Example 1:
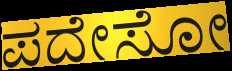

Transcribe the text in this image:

ಪದೇಸೋ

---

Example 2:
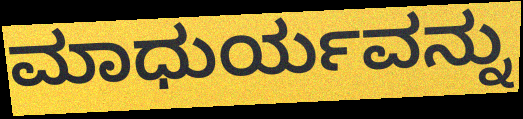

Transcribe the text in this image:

ಮಾಧುರ್ಯವನ್ನು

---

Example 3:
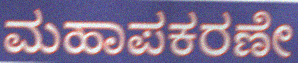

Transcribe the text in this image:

ಮಹಾಪಕರಣೇ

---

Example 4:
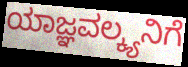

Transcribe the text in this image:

ಯಾಜ್ಞವಲ್ಕ್ಯನಿಗೆ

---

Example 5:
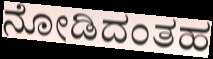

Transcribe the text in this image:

ನೋಡಿದಂತಹ